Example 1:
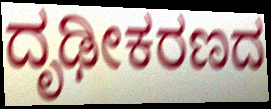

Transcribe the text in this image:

ದೃಢೀಕರಣದ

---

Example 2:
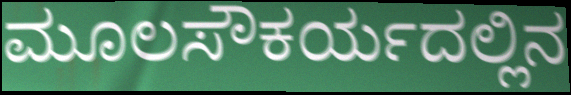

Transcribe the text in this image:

ಮೂಲಸೌಕರ್ಯದಲ್ಲಿನ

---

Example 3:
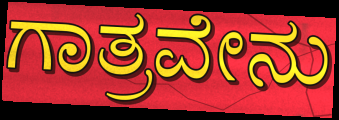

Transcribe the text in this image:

ಗಾತ್ರವೇನು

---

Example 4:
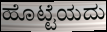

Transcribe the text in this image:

ಹೊಟ್ಟೆಯದು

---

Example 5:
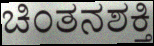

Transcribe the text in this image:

ಚಿಂತನಶಕ್ತಿ